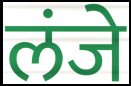
लंजे